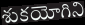
శుకయోగిని